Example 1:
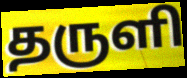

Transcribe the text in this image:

தருளி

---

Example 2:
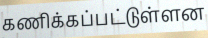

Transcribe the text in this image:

கணிக்கப்பட்டுள்ளன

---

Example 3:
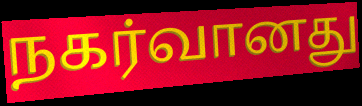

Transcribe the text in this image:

நகர்வானது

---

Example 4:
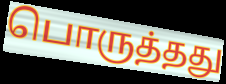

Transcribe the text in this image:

பொருத்தது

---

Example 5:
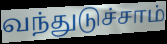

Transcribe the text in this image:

வந்துடுச்சாம்